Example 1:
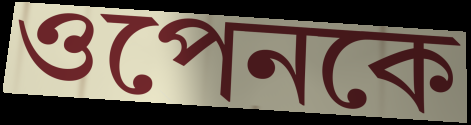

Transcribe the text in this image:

ওপেনকে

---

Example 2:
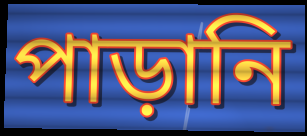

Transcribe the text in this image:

পাড়ানি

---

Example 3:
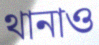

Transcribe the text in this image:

থানাও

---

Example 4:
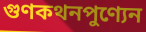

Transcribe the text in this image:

গুণকথনপুণ্যেন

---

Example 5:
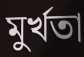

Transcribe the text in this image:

মুর্খতা